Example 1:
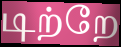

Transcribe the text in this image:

டிற்றே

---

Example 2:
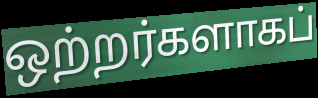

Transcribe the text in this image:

ஒற்றர்களாகப்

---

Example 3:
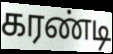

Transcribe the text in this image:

கரண்டி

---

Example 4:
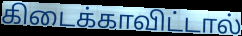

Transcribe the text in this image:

கிடைக்காவிட்டால்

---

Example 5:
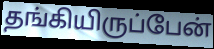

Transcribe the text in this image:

தங்கியிருப்பேன்